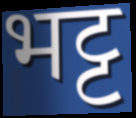
भट्ट